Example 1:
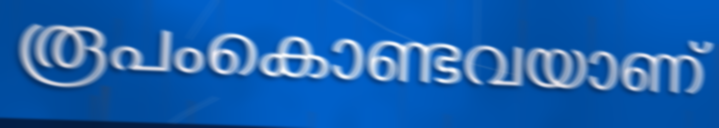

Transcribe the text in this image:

രൂപംകൊണ്ടവയാണ്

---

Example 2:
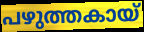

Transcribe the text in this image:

പഴുത്തകായ്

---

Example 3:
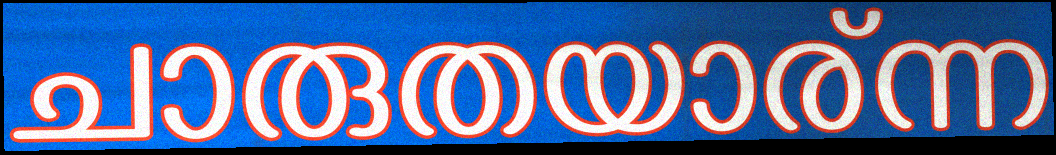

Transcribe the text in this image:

ചാരുതയാര്ന്ന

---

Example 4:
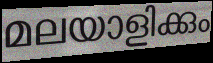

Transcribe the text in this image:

മലയാളിക്കും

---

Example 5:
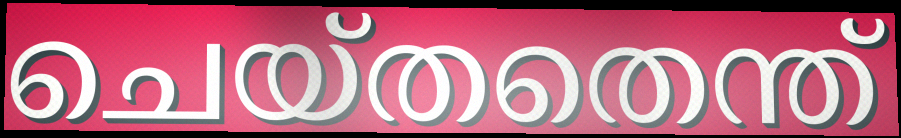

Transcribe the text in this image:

ചെയ്തതെന്ത്